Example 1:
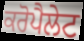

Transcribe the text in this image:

ਕਰੋਪੈਲੇਟ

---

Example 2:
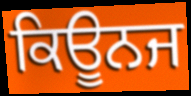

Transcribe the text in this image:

ਕਿਊਨਜ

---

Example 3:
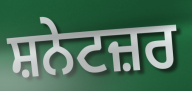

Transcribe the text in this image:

ਸ਼ਨੇਟਜ਼ਰ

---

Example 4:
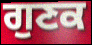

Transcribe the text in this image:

ਗੁਣਕ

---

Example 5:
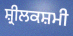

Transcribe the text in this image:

ਸ਼੍ਰੀਲਕਸ਼ਮੀ